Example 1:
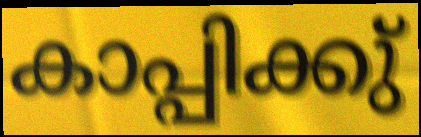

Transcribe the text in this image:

കാപ്പിക്കു്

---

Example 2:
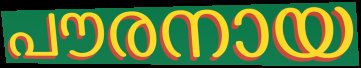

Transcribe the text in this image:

പൗരനായ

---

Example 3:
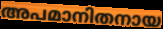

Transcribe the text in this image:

അപമാനിതനായ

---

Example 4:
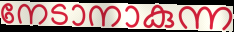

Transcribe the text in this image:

നേടാനാകുന്ന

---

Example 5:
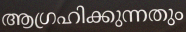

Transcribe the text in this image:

ആഗ്രഹിക്കുന്നതും